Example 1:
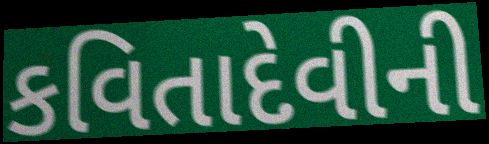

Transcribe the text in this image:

કવિતાદેવીની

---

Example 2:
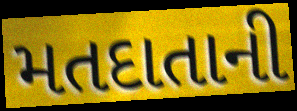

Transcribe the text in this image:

મતદાતાની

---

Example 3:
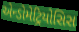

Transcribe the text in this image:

એન્ડોમેટ્રિયોસિસ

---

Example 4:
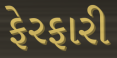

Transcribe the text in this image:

ફેરફારી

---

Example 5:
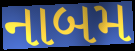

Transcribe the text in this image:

નાબમ